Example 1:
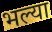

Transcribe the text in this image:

भल्या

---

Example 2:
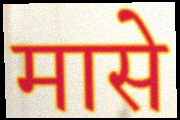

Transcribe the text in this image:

मासे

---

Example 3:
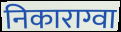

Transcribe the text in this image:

निकाराग्वा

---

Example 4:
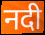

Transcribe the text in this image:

नदी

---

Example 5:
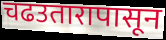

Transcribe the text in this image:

चढउतारापासून